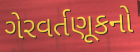
ગેરવર્તણૂકનો